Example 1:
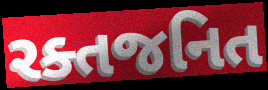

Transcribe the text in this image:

રક્તજનિત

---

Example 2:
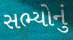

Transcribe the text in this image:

સભ્યોનું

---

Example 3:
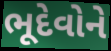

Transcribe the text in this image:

ભૂદેવોને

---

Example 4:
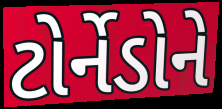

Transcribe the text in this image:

ટોર્નેડોને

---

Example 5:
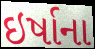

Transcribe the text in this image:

ઇર્ષાના